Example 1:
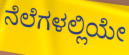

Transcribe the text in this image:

ನೆಲೆಗಳಲ್ಲಿಯೇ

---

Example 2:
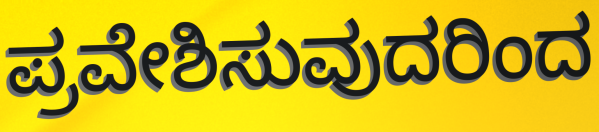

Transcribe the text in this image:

ಪ್ರವೇಶಿಸುವುದರಿಂದ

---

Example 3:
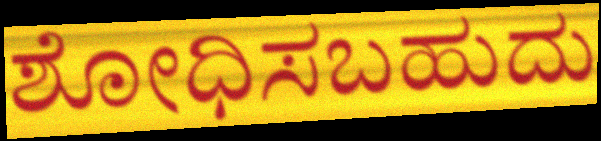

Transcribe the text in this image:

ಶೋಧಿಸಬಹುದು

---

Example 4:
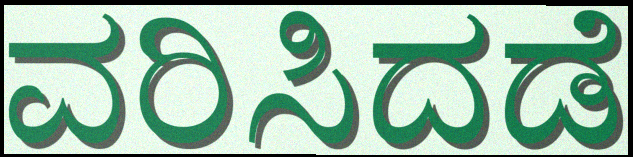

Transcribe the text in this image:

ವರಿಸಿದಡೆ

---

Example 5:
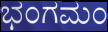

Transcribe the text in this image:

ಭಂಗಮಂ